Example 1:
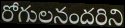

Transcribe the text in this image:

రోగులనందరిని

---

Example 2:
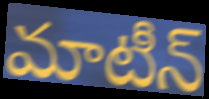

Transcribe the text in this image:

మాటీన్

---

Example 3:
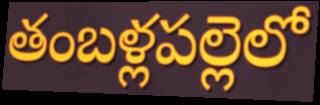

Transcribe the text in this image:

తంబళ్లపల్లెలో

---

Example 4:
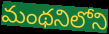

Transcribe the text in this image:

మంథనిలోని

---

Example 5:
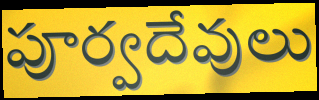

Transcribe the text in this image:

పూర్వదేవులు